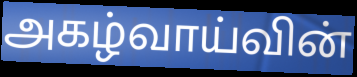
அகழ்வாய்வின்